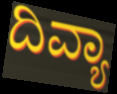
ದಿವ್ಯಾ